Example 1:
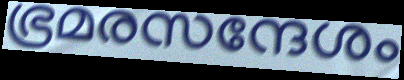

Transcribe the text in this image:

ഭ്രമരസന്ദേശം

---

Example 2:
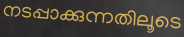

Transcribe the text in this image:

നടപ്പാക്കുന്നതിലൂടെ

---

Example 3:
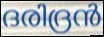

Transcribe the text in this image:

ദരിദ്രൻ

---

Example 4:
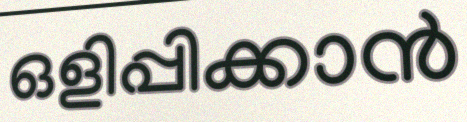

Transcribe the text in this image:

ഒളിപ്പിക്കാൻ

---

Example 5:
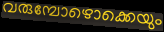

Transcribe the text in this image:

വരുമ്പോഴൊക്കെയും